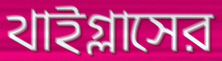
থাইগ্লাসের